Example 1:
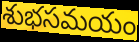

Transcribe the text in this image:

శుభసమయం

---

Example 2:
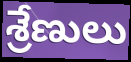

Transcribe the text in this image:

శ్రేణులు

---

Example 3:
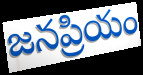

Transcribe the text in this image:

జనప్రియం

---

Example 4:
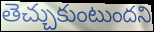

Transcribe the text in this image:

తెచ్చుకుంటుందని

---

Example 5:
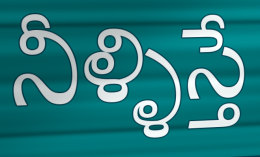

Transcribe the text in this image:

నీళ్ళిస్తే